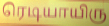
ரெடியாயிரு